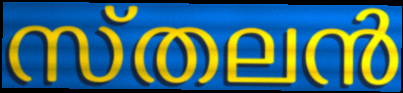
സ്‌തലൻ